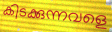
കിടക്കുന്നവളെ